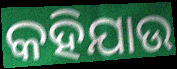
କହିଯାଉ